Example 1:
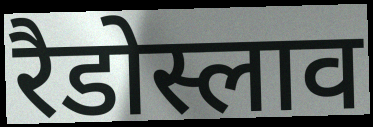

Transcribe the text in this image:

रैडोस्लाव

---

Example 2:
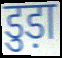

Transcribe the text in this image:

डुड़ा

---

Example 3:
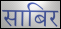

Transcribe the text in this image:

साबिर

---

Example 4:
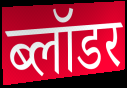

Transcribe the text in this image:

ब्लॉडर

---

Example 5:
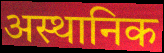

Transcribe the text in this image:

अस्थानिक